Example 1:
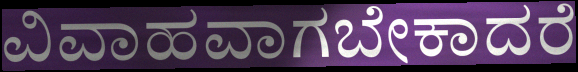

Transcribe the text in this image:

ವಿವಾಹವಾಗಬೇಕಾದರೆ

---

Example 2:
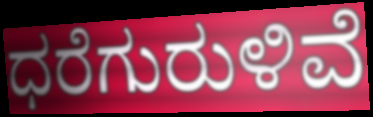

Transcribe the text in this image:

ಧರೆಗುರುಳಿವೆ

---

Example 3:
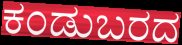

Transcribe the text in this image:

ಕಂಡುಬರದ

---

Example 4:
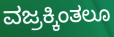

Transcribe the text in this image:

ವಜ್ರಕ್ಕಿಂತಲೂ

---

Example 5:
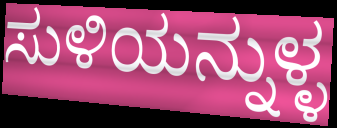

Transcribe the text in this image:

ಸುಳಿಯನ್ನುಳ್ಳ